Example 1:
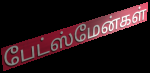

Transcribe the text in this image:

பேட்ஸ்மேன்கள்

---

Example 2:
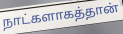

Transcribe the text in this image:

நாட்களாகத்தான்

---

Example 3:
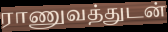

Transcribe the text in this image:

ராணுவத்துடன்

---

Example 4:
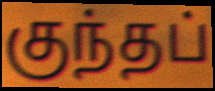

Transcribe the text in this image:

குந்தப்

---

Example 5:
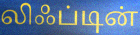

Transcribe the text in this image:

லிஃப்டின்